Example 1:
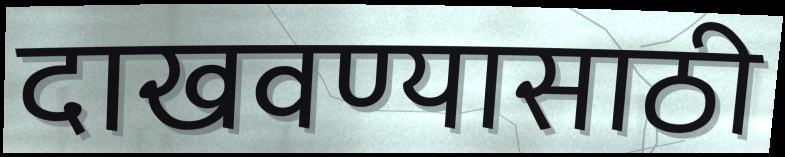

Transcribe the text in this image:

दाखवण्यासाठी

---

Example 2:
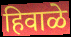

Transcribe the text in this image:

हिवाळे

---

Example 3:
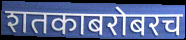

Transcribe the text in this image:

शतकाबरोबरच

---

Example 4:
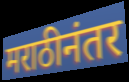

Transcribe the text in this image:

मराठीनंतर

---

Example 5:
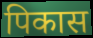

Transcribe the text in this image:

पिकास